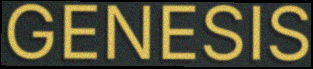
GENESIS